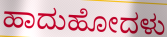
ಹಾದುಹೋದಳು